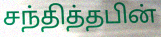
சந்தித்தபின்